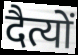
दैत्यों